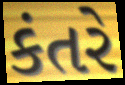
કંતરે